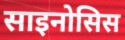
साइनोसिस